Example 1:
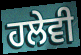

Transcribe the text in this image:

ਹਲੇਵੀ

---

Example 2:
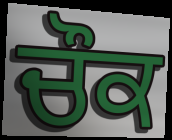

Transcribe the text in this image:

ਚੌਕ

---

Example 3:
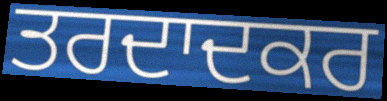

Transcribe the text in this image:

ਤਰਦਾਦਕਰ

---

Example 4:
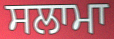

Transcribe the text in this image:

ਸਲਾਮਾ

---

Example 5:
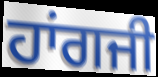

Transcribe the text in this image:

ਹਾਂਗਜੀ